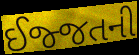
ઈજ્જતની